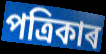
পত্ৰিকাৰ